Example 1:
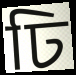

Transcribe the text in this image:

ঢি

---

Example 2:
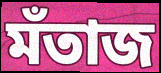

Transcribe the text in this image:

মঁতাজ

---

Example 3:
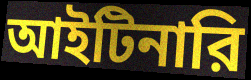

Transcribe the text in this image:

আইটিনারি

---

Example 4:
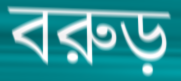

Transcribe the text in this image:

বরুড়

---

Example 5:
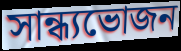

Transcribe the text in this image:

সান্ধ্যভোজন